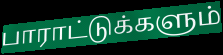
பாராட்டுக்களும்